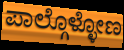
ಪಾಲ್ಗೊಳ್ಳೋಣ